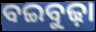
ବଇବୁଢ଼ା